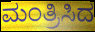
ಮಂತ್ರಿಸಿದ